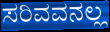
ಸರಿವವನಲ್ಲ